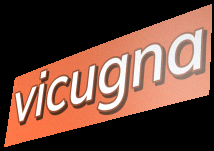
vicugna